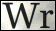
Wr